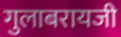
गुलाबरायजी